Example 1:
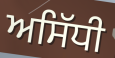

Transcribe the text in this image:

ਅਸਿੱਧੀ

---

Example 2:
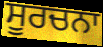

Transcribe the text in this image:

ਸੂਰਚਨਾ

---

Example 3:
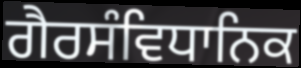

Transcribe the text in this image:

ਗੈਰਸੰਵਿਧਾਨਿਕ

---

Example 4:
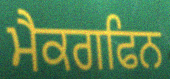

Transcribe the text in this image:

ਮੈਕਗਫਿਨ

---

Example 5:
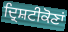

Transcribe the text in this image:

ਦ੍ਰਿਸ਼ਟੀਕੋਣਾਂ